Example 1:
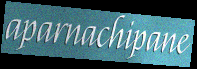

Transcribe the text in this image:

aparnachipane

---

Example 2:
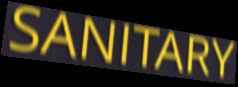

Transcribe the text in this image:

SANITARY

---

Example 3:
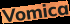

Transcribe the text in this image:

Vomica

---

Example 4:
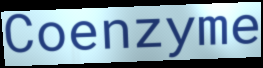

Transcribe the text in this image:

Coenzyme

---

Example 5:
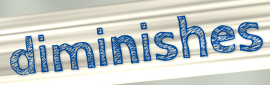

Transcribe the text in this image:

diminishes